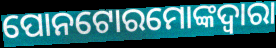
ପୋନଟୋରମୋଙ୍କଦ୍ୱାରା